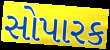
સોપારક